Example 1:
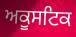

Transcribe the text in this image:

ਅਕੂਸਟਿਕ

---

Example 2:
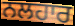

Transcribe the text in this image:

ਨਲਹਾਰ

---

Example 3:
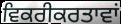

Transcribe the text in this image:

ਵਿਕਰੀਕਰਤਾਵਾਂ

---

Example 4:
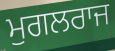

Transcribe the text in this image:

ਮੁਗਲਰਾਜ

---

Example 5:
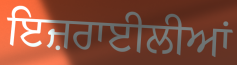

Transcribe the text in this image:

ਇਜ਼ਰਾਈਲੀਆਂ